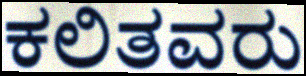
ಕಲಿತವರು